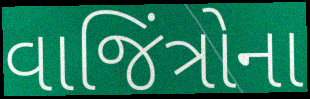
વાજિંત્રોના